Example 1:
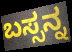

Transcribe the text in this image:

ಬಸ್ಸನ್ನ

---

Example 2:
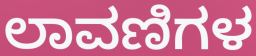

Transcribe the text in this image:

ಲಾವಣಿಗಳ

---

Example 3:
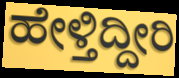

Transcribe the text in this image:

ಹೇಳ್ತಿದ್ದೀರಿ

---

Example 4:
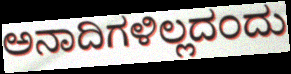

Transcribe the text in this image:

ಅನಾದಿಗಳಿಲ್ಲದಂದು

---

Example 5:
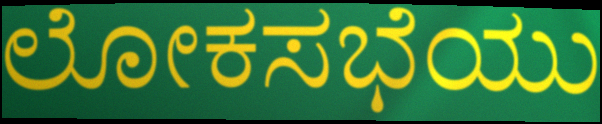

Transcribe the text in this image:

ಲೋಕಸಭೆಯು